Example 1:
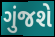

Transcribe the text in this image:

ગુંજશે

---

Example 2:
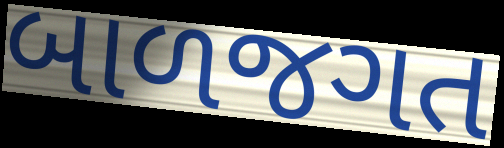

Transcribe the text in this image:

બાળજગત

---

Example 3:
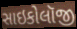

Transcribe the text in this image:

સાઇકોલૉજી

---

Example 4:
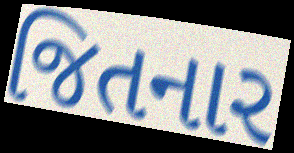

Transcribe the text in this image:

જિતનાર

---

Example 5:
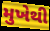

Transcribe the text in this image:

મુખેથી